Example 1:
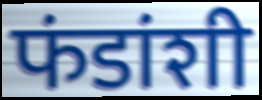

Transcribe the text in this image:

फंडांशी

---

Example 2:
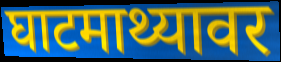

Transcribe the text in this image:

घाटमाथ्यावर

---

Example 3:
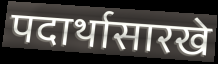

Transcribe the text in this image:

पदार्थासारखे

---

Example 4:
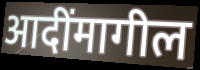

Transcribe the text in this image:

आदींमागील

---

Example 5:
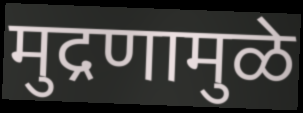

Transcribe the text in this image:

मुद्रणामुळे